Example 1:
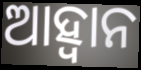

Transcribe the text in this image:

ଆହ୍ୱାନ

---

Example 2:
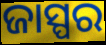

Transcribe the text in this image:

ଜାସ୍ପର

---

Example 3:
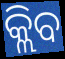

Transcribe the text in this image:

କ୍ଲିବ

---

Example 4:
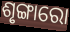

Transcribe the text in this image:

ଶୃଙ୍ଗାରୋ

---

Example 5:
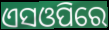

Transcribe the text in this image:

ଏସଓପିରେ